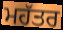
ਮਹੱਤਰ